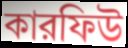
কারফিউ